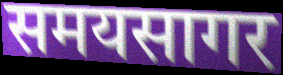
समयसागर